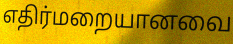
எதிர்மறையானவை